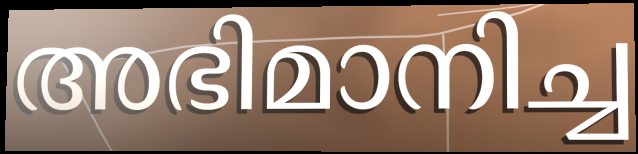
അഭിമാനിച്ച